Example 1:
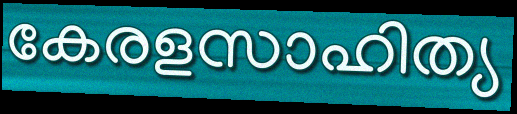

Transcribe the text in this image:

കേരളസാഹിത്യ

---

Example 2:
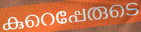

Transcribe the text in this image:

കുറെപ്പേരുടെ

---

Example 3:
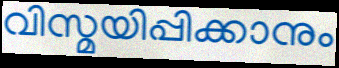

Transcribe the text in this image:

വിസ്മയിപ്പിക്കാനും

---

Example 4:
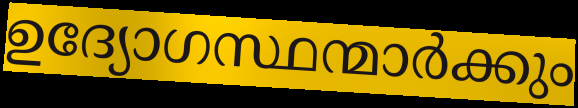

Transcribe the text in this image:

ഉദ്യോഗസ്ഥന്മാർക്കും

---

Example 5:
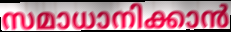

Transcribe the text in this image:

സമാധാനിക്കാൻ